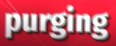
purging